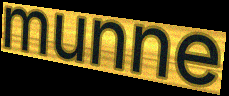
munne